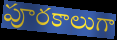
పూరకాలుగా